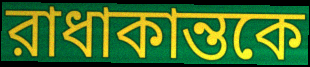
রাধাকান্তকে